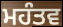
ਮਹੰਤਵ